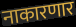
नाकारणार